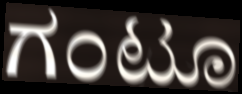
ಗಂಟೂ